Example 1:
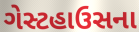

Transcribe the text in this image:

ગેસ્ટહાઉસના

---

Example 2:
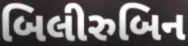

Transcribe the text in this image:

બિલીરુબિન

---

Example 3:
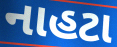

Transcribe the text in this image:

નાહટા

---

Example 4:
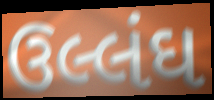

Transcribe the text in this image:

ઉલ્લંઘ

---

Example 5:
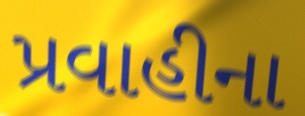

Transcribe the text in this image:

પ્રવાહીના